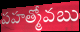
పహత్మోవబు